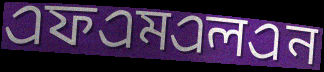
এফএমএলএন